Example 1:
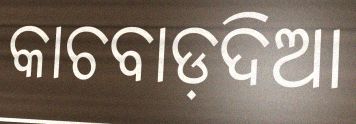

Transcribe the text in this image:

କାଚବାଡ଼ଦିଆ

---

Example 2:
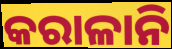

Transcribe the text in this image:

କରାଳାନି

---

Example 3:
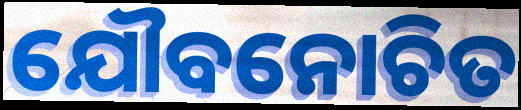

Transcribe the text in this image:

ଯୌବନୋଚିତ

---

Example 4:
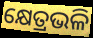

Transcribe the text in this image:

କ୍ଷେତ୍ରଭଳି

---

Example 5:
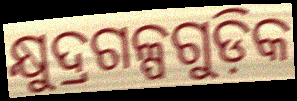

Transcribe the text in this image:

କ୍ଷୁଦ୍ରଗଳ୍ପଗୁଡ଼ିକ